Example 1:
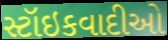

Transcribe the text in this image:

સ્ટૉઇકવાદીઓ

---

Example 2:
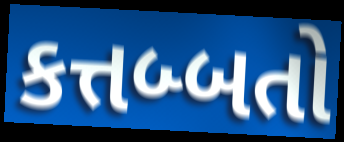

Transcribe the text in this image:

કત્તબ્બતો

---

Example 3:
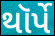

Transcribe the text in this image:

થૉર્પે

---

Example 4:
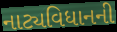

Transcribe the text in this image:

નાટ્યવિધાનની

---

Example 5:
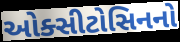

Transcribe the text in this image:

ઓક્સીટોસિનનો